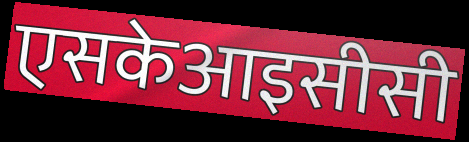
एसकेआइसीसी